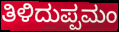
ತಿಳಿದುಪ್ಪಮಂ